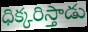
ధిక్కరిస్తాడు